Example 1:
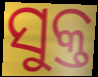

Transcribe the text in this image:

ସୁକ୍ତ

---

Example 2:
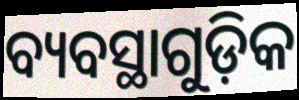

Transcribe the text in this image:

ବ୍ୟବସ୍ଥାଗୁଡ଼ିକ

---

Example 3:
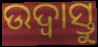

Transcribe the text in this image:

ଉଦ୍ବାସ୍ତୁ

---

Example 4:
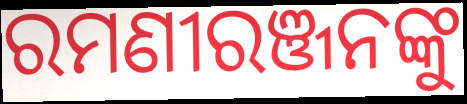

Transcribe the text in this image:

ରମଣୀରଞ୍ଜନଙ୍କୁ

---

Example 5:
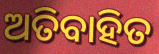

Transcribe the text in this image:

ଅତିବାହିତ